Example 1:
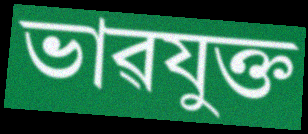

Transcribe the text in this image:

ভাৱযুক্ত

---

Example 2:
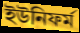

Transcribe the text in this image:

ইউনিফৰ্ম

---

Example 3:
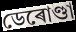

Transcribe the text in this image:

ডেৰোণ্ডা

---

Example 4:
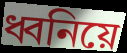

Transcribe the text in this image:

ধ্বনিয়ে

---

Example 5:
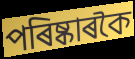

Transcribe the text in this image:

পৰিষ্কাৰকৈ